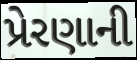
પ્રેરણાની